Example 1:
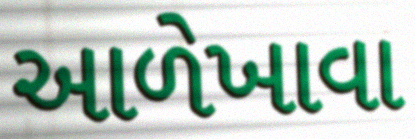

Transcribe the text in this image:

આળેખાવા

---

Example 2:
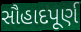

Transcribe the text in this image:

સૌહાદપૂર્ણ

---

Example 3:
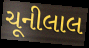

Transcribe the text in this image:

ચૂનીલાલ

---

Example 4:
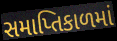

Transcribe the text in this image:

સમાપ્તિકાળમાં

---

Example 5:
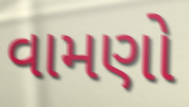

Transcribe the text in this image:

વામણો